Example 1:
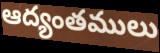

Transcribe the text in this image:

ఆద్యంతములు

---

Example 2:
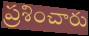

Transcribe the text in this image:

ప్రశించారు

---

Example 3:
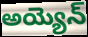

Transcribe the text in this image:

అయ్యెన్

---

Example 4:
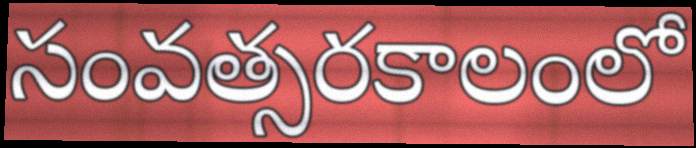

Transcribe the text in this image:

సంవత్సరకాలంలో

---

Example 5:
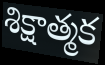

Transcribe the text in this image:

శిక్షాత్మక